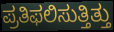
ಪ್ರತಿಫಲಿಸುತ್ತಿತ್ತು